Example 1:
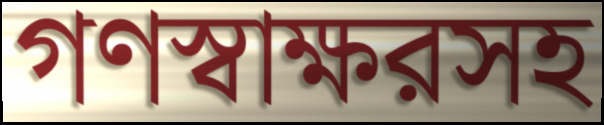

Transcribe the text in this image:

গণস্বাক্ষরসহ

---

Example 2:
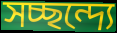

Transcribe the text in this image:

সচ্ছন্দ্যে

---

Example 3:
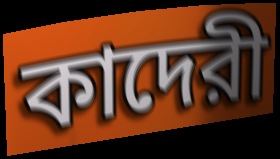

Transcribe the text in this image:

কাদেরী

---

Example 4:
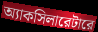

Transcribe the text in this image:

অ্যাকসিলারেটারে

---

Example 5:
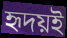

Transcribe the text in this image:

হৃদয়ই